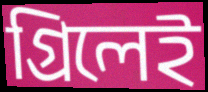
গ্রিলেই